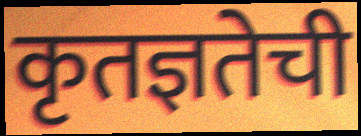
कृतज्ञतेची